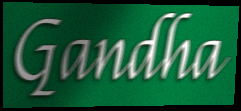
Gandha